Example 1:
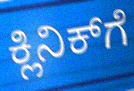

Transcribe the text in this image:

ಕ್ಲಿನಿಕ್‍ಗೆ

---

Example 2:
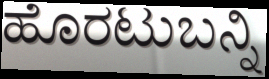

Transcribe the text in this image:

ಹೊರಟುಬನ್ನಿ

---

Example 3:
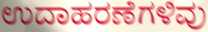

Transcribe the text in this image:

ಉದಾಹರಣೆಗಳಿವು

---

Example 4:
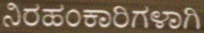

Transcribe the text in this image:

ನಿರಹಂಕಾರಿಗಳಾಗಿ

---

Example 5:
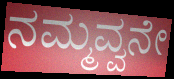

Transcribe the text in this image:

ನಮ್ಮವ್ವನೇ